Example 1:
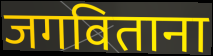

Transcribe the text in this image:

जगविताना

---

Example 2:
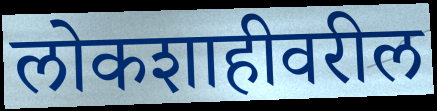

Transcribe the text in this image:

लोकशाहीवरील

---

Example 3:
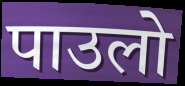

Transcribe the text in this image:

पाउलो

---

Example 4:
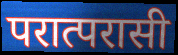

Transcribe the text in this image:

परात्परासी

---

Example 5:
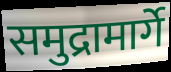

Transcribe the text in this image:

समुद्रामार्गे